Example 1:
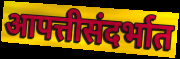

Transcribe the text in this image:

आपत्तीसंदर्भात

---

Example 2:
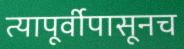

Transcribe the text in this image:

त्यापूर्वीपासूनच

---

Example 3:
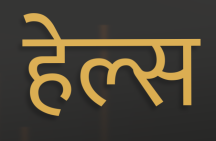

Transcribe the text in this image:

हेल्स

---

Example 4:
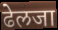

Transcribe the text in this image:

ढेलजा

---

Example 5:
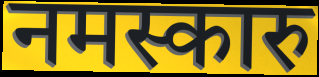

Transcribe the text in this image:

नमस्कारु